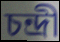
চন্দ্রী